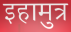
इहामुत्र